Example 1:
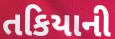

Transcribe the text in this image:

તકિયાની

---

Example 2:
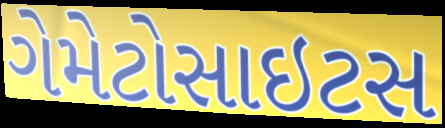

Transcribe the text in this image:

ગેમેટોસાઇટસ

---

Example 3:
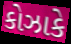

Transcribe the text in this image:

કોઝાકે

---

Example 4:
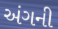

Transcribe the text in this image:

અંગની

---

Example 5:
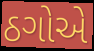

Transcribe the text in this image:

ઠગોએ